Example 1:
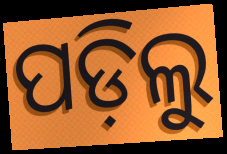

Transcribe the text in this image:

ପଡ଼ିଲୁ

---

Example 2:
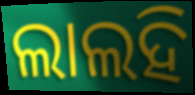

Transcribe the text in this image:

ଲାଲହି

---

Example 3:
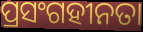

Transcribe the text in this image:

ପ୍ରସଂଗହୀନତା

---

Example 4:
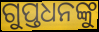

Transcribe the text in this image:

ଗୁପ୍ତଧନଙ୍କୁ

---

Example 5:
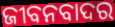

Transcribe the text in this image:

ଜୀବନବାଦର